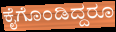
ಕೈಗೊಂಡಿದ್ದರೂ